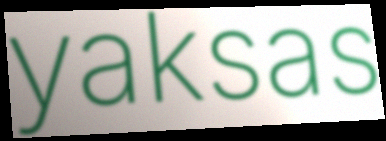
yaksas